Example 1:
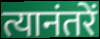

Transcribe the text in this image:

त्यानंतरें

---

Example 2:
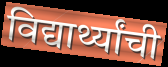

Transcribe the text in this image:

विद्यार्थ्‍यांची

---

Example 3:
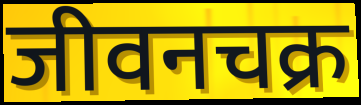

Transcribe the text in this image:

जीवनचक्र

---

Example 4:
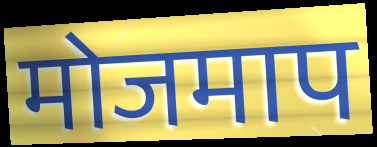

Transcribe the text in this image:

मोजमाप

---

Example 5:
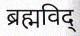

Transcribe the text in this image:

ब्रह्मविद्